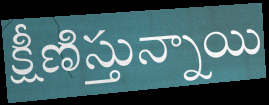
క్షీణిస్తున్నాయి